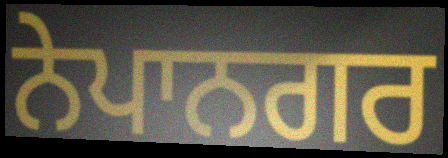
ਨੇਪਾਨਗਰ